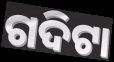
ଗଦିଟା